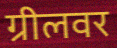
ग्रीलवर